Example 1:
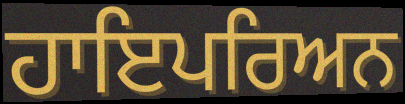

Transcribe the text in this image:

ਹਾਇਪਰਿਅਨ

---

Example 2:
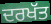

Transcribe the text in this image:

ਦਰਖੱਤ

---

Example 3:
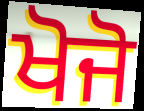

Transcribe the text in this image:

ਖੋਜੋ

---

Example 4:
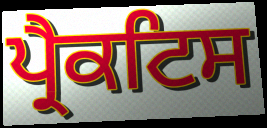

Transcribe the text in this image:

ਪ੍ਰੈਕਟਿਸ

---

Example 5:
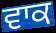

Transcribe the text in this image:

ਵਾਕ